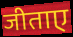
जीताए